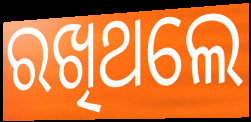
ରଖିଥଲେ